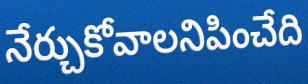
నేర్చుకోవాలనిపించేది